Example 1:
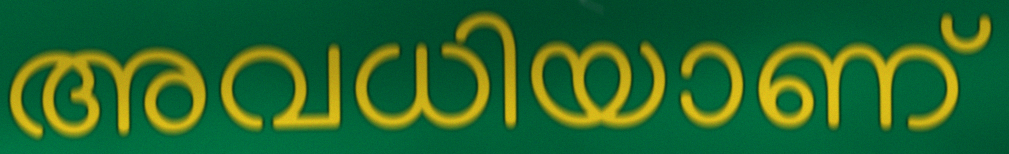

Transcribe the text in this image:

അവധിയാണ്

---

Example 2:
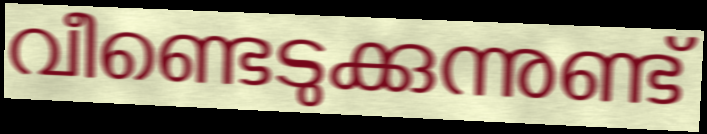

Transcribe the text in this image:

വീണ്ടെടുക്കുന്നുണ്ട്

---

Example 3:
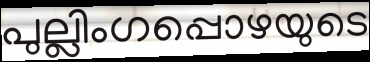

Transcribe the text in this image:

പുല്ലിംഗപ്പൊഴയുടെ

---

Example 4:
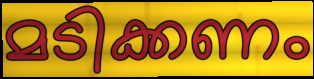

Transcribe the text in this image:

മടിക്കണം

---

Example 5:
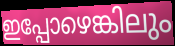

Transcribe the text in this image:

ഇപ്പോഴെങ്കിലും